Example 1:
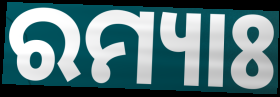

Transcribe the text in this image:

ରମ୍ୟାଃ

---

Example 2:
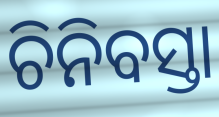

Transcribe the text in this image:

ଚିନିବସ୍ତା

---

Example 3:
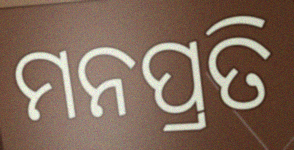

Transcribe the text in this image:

ମନପ୍ରତି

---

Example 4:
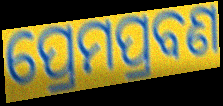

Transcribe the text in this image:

ପ୍ରେମପ୍ରବଣ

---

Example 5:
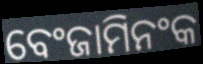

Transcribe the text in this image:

ବେଂଜାମିନଂକ